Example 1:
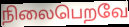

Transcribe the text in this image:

நிலைபெறவே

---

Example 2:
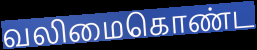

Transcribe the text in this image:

வலிமைகொண்ட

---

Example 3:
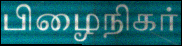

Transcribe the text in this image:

பிழைநிகர்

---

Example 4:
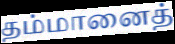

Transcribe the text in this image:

தம்மானைத்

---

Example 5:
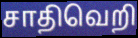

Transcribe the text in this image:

சாதிவெறி